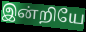
இன்றியே